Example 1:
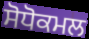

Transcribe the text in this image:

ਸੋਧੋਕਮਲ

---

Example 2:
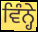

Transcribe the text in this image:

ਵਿੰਨ੍ਹੇ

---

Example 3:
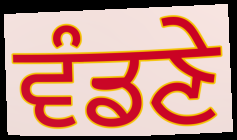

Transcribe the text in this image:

ਵੰਡਣੇ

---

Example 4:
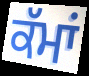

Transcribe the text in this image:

ਕੱਮਾਂ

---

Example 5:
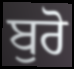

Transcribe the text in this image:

ਬੁਰੋ